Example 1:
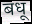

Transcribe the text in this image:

बधू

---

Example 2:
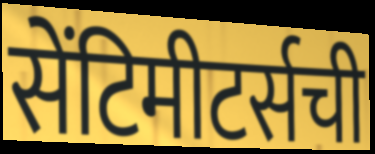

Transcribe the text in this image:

सेंटिमीटर्सची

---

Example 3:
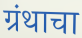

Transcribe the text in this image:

ग्रंथाचा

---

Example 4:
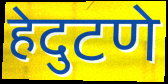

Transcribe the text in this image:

हेदुटणे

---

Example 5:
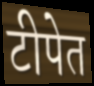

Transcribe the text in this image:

टीपेत